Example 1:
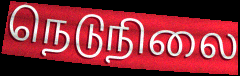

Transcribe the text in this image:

நெடுநிலை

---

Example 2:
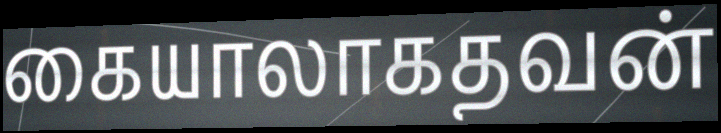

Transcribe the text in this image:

கையாலாகதவன்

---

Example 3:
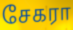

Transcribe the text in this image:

சேகரா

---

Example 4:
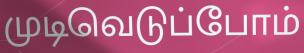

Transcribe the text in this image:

முடிவெடுப்போம்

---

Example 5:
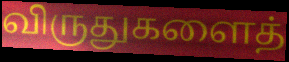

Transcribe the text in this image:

விருதுகளைத்